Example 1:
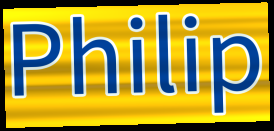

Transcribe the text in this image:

Philip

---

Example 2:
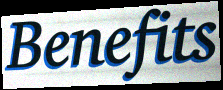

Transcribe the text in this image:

Benefits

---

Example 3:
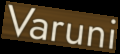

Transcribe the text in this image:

Varuni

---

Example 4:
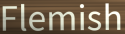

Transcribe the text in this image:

Flemish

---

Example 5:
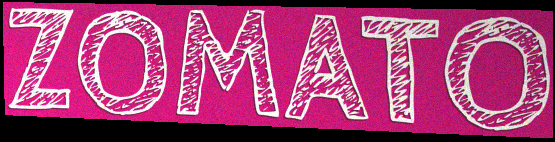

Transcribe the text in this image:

ZOMATO